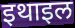
इथाइल